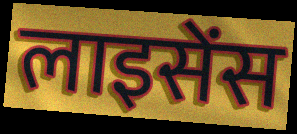
लाइसेंस